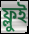
ফ্লুই